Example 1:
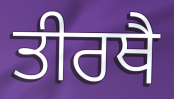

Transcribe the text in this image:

ਤੀਰਥੈ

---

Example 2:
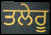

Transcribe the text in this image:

ਤਲੇਰੂ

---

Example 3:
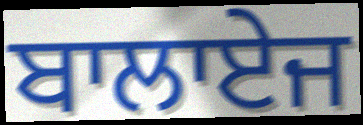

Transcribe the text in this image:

ਬਾਲਾਏਜ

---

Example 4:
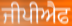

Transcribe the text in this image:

ਜੀਪੀਐਫ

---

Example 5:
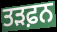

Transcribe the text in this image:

ਤੜਫ਼ਨ